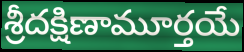
శ్రీదక్షిణామూర్తయే